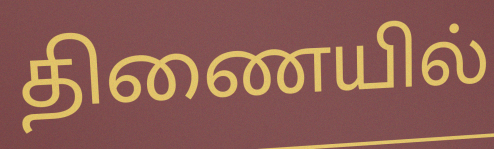
திணையில்